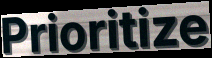
Prioritize